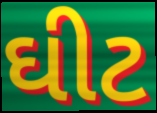
ઘીટ